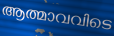
ആത്മാവവിടെ